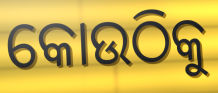
କୋଉଠିକୁ